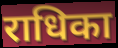
राधिका